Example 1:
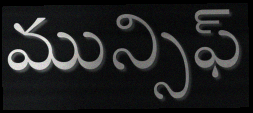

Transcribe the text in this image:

మున్సిఫ్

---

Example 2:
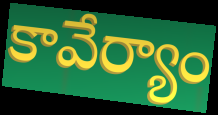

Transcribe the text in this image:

కావేర్యాం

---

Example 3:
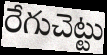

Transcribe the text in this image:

రేగుచెట్టు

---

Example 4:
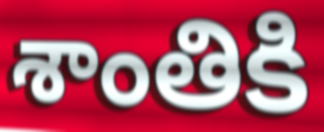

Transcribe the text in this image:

శాంతికి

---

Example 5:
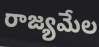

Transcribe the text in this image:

రాజ్యమేల